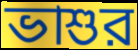
ভাশুর